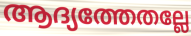
ആദ്യത്തേതല്ലേ